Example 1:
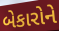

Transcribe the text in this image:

બેકારોને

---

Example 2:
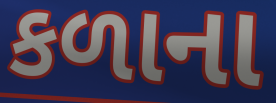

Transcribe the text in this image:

કળાના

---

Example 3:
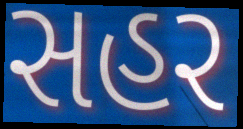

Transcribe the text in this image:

સહર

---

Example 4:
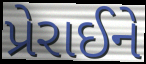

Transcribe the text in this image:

પ્રેરાઈને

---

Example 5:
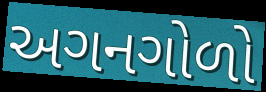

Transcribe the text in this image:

અગનગોળો